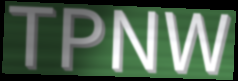
TPNW